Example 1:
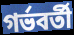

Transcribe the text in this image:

গর্ভবর্তী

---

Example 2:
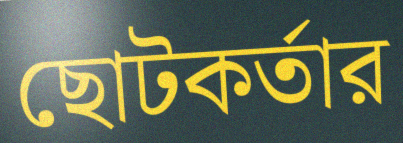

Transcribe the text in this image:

ছোটকর্তার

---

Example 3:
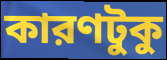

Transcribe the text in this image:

কারণটুকু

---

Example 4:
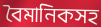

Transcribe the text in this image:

বৈমানিকসহ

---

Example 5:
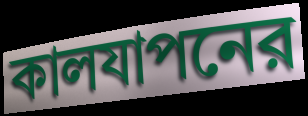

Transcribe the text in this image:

কালযাপনের